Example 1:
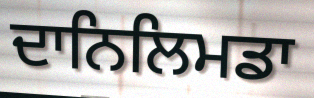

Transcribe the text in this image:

ਦਾਨਿਲਿਮਡਾ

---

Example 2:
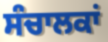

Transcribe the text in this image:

ਸੰਚਾਲਕਾਂ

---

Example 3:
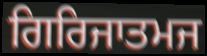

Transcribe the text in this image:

ਗਿਰਿਜਾਤਮਜ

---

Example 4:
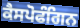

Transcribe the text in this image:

ਕੈਸਪੋਫੰਗਿਨ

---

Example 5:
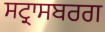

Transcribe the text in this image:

ਸਟ੍ਰਾਸਬਰਗ